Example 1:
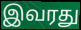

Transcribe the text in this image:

இவரது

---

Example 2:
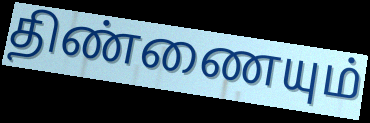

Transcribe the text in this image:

திண்ணையும்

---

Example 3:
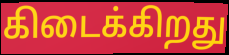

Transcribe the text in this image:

கிடைக்கிறது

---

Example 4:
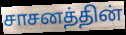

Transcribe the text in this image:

சாசனத்தின்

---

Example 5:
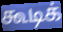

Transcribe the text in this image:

கூடிக்